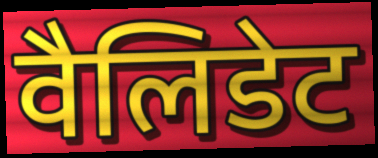
वैलिडेट